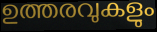
ഉത്തരവുകളും